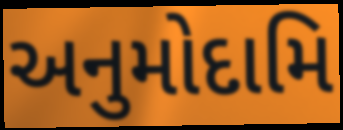
અનુમોદામિ